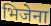
भिजेना